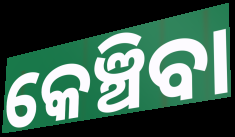
କେଞ୍ଚିବା